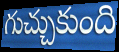
గుచ్చుకుంది